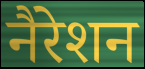
नैरेशन